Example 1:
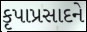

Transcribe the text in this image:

કૃપાપ્રસાદને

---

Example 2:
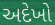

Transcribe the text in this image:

અદેખો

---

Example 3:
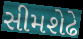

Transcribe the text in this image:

સીમશેઢે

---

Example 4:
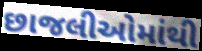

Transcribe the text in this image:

છાજલીઓમાંથી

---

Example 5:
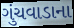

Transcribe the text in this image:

ગુંચવાડાના